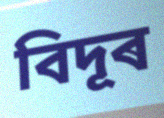
বিদূৰ